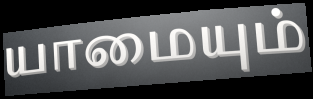
யாமையும்